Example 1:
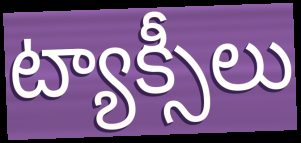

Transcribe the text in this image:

ట్యాక్సీలు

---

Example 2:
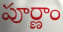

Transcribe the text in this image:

పూర్ణాం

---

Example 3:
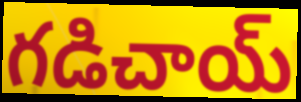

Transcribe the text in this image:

గడిచాయ్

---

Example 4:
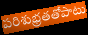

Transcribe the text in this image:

పరిశుభ్రతతోపాటు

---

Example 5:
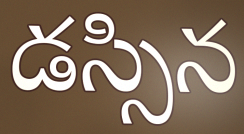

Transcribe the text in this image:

డస్సిన